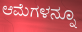
ಆಮೆಗಳನ್ನೂ